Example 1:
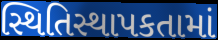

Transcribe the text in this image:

સ્થિતિસ્થાપકતામાં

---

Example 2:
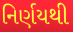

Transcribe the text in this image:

નિર્ણયથી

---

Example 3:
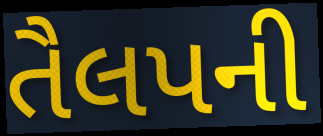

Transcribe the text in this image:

તૈલપની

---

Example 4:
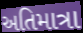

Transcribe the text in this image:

અતિમાત્રા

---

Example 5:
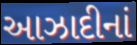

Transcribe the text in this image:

આઝાદીનાં